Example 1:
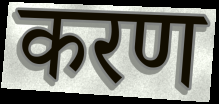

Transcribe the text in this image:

करण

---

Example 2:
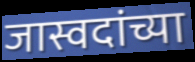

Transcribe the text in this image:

जास्वदांच्या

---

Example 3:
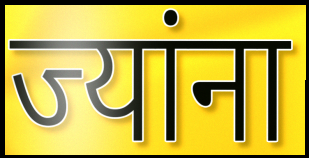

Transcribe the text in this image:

ज्यांना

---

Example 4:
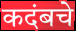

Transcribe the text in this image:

कदंबचे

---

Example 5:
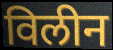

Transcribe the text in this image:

विलीन